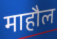
माहौल